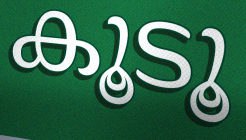
കൂടൂ